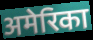
अमेरिका